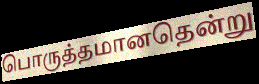
பொருத்தமானதென்று